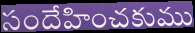
సందేహించకుము